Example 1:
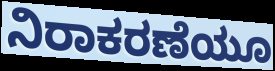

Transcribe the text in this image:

ನಿರಾಕರಣೆಯೂ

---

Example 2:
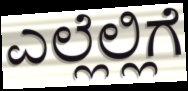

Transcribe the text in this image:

ಎಲ್ಲೆಲ್ಲಿಗೆ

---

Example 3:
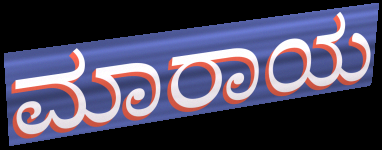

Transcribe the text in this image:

ಮಾರಾಯ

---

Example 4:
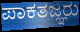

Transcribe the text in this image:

ಪಾಕತಜ್ಞರು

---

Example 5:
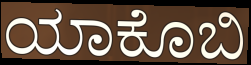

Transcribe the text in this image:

ಯಾಕೊಬಿ